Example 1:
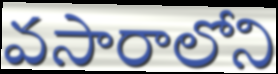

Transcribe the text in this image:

వసారాలోని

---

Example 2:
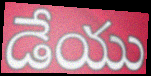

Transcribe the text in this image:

డేయు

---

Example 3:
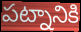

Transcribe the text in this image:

పట్నానికి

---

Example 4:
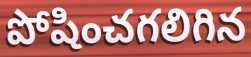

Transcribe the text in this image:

పోషించగలిగిన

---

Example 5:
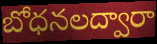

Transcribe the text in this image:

బోధనలద్వారా